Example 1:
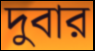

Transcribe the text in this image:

দুবার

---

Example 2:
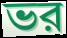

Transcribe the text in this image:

ভর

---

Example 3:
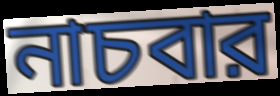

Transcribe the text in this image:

নাচবার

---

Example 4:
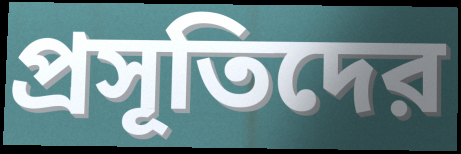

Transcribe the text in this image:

প্রসূতিদের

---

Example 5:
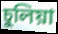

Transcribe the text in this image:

চুলিয়া